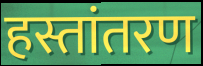
हस्तांतरण